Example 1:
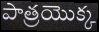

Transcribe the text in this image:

పాత్రయొక్క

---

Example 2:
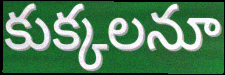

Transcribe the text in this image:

కుక్కలనూ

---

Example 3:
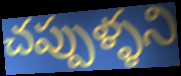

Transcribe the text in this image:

చప్పుళ్ళని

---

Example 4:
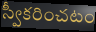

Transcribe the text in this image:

స్వీకరించటం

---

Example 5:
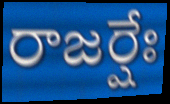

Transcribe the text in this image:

రాజర్షేః